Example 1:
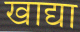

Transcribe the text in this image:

खाद्या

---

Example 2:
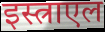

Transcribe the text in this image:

इस्त्राएल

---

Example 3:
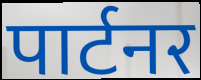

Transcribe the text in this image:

पार्टनर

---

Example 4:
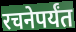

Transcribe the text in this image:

रचनेपर्यंत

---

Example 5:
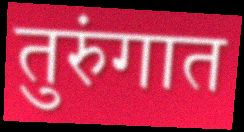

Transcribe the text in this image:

तुरुंगात